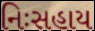
નિઃસહાય